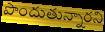
పొందుతున్నారని